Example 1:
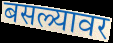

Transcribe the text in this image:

बसल्यावर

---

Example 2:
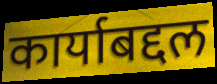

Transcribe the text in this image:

कार्याबद्दल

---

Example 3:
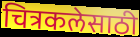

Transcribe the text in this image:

चित्रकलेसाठी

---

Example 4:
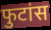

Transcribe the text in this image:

फुटांस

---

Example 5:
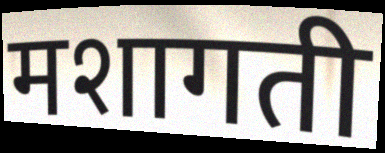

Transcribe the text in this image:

मशागती